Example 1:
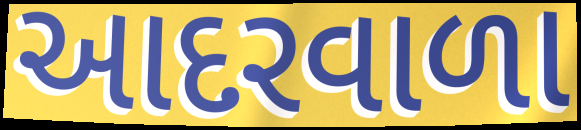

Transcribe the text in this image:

આદરવાળા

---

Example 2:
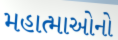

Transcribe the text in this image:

મહાત્માઓનો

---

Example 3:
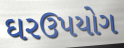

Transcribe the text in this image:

ઘરઉપયોગ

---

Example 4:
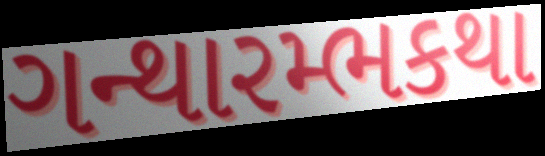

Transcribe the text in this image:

ગન્થારમ્ભકથા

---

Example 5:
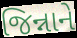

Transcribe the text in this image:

જિન્નાને